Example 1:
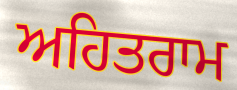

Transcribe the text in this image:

ਅਹਿਤਰਾਮ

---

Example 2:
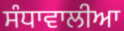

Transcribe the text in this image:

ਸੰਧਾਵਾਲੀਆ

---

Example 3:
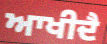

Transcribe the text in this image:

ਆਖੀਦੈ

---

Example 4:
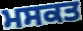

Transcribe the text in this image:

ਮਸਕਤ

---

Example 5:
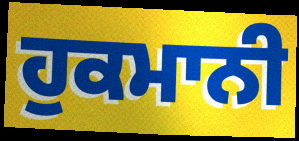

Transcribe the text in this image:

ਹੁਕਮਾਨੀ